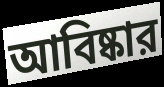
আবিষ্কার